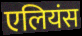
एलियंस